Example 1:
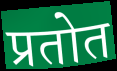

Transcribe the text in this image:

प्रतोत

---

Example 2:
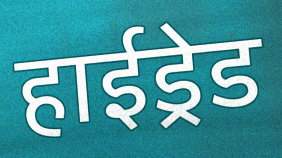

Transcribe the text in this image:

हाईड्रेड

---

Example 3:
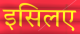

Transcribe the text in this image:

इसिलए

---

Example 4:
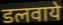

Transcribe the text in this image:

डलवाये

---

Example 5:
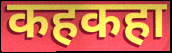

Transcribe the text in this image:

कहकहा